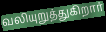
வலியுறுத்துகிறார்